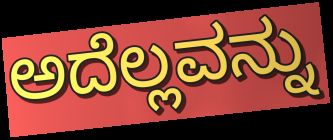
ಅದೆಲ್ಲವನ್ನು